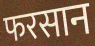
फरसान